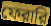
ফেরারি